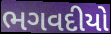
ભગવદીયો